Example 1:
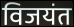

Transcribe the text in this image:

विजयंत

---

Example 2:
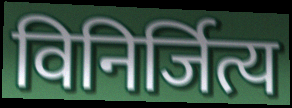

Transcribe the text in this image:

विनिर्जित्य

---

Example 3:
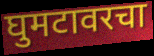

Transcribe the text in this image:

घुमटावरचा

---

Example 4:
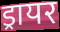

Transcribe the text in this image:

ड्रायर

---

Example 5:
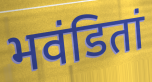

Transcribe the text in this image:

भवंडितां